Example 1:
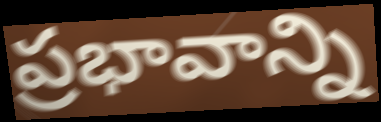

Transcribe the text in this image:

ప్రభావాన్ని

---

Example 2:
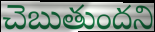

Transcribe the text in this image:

చెబుతుందని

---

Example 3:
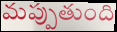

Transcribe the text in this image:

మప్పుతుంది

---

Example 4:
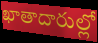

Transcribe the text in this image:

ఖాతాదారుల్లో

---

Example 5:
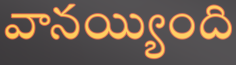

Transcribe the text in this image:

వానయ్యింది